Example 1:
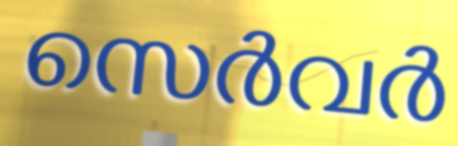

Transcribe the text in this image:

സെർവർ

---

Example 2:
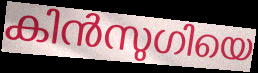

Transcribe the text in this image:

കിൻസുഗിയെ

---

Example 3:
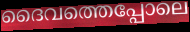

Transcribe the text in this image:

ദൈവത്തെപ്പോലെ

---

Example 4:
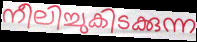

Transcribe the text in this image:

നീലിച്ചുകിടക്കുന്ന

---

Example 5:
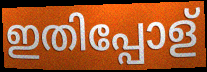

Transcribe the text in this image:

ഇതിപ്പോള്